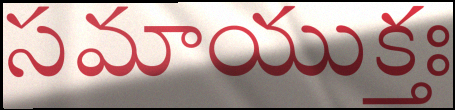
సమాయుక్తః